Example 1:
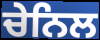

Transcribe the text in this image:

ਚੇਨਿਲ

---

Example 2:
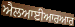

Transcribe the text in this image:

ਐਲਆਈਆਰਆਰ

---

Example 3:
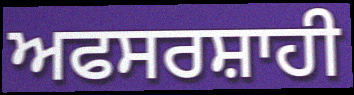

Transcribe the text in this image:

ਅਫਸਰਸ਼ਾਹੀ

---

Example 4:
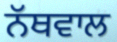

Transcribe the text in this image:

ਨੱਥਵਾਲ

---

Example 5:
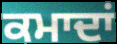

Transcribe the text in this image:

ਕਮਾਦਾਂ